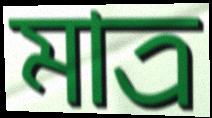
মাত্র